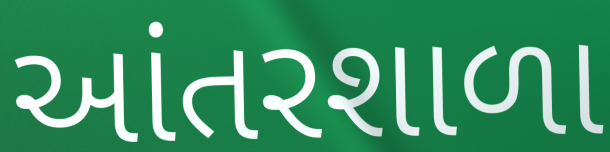
આંતરશાળા